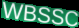
WBSSC